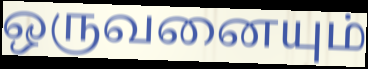
ஒருவனையும்